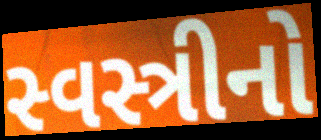
સ્વસ્ત્રીનો